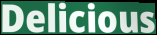
Delicious